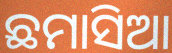
ଛମାସିଆ